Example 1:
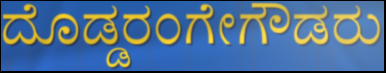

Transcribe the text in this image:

ದೊಡ್ಡರಂಗೇಗೌಡರು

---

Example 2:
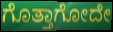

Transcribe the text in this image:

ಗೊತ್ತಾಗೋದೇ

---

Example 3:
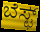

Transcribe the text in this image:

ಬೆಸ್ಟ್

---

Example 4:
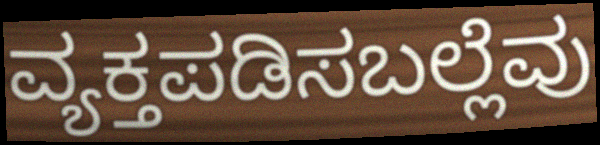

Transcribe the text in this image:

ವ್ಯಕ್ತಪಡಿಸಬಲ್ಲೆವು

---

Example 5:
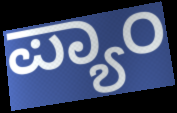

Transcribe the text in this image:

ಪ್ಯಾಂ